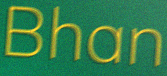
Bhan